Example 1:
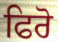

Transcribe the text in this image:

ਫਿਰੋ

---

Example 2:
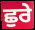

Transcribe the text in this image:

ਛੁਰੇ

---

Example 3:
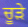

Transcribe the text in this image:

ਚੂੜੇ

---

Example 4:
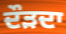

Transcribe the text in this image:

ਦੌੜਦਾ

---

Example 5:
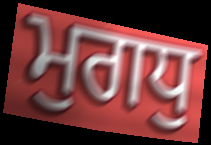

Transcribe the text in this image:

ਮੁਗਧੁ